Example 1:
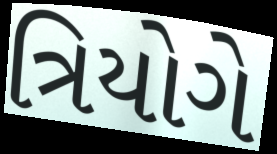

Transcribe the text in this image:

ત્રિયોગે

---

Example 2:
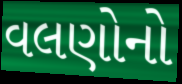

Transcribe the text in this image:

વલણોનો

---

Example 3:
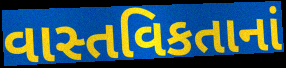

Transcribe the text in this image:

વાસ્તવિકતાનાં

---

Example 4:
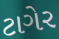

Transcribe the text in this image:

ટાગેર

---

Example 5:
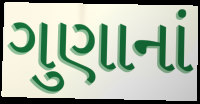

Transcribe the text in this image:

ગુણાનાં